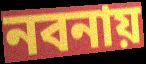
নবনায়